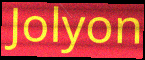
Jolyon